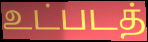
உட்படத்